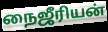
நைஜீரியன்